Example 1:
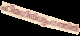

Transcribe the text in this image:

ഹിമഗിരിശൃംഗത്തിൽ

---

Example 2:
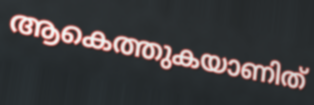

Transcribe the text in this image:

ആകെത്തുകയാണിത്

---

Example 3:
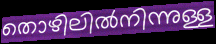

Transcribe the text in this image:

തൊഴിലിൽനിന്നുള്ള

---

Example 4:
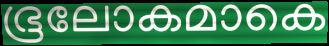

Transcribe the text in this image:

ഭൂലോകമാകെ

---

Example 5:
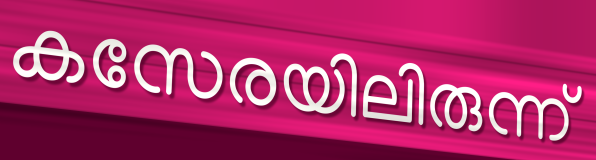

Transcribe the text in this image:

കസേരയിലിരുന്ന്